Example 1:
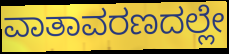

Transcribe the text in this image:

ವಾತಾವರಣದಲ್ಲೇ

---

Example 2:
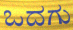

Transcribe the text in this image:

ಒದಗು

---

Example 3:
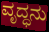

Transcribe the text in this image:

ವೃದ್ಧನು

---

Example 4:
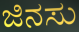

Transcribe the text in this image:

ಜಿನಸು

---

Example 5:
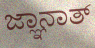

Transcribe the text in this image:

ಜ್ಞಾನಾತ್